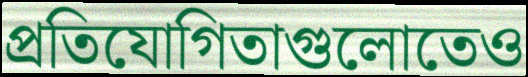
প্রতিযোগিতাগুলোতেও